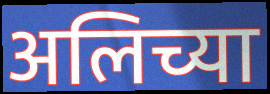
अलिच्या